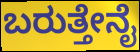
ಬರುತ್ತೇನೈ